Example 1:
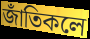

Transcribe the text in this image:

জাঁতিকলে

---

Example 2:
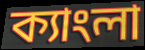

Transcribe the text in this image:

ক্যাংলা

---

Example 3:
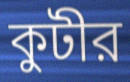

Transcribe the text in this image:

কুটীর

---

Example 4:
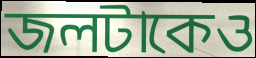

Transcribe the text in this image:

জলটাকেও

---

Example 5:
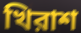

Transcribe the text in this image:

খিরাশ